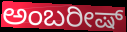
ಅಂಬರೀಷ್